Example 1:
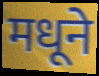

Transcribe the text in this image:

मधूने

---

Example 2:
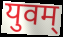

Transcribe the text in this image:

युवम्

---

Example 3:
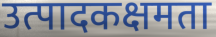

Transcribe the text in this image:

उत्पादकक्षमता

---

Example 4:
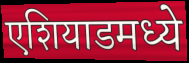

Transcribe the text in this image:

एशियाडमध्ये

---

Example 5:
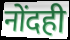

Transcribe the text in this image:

नोंदही